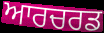
ਆਰਚਰਡ